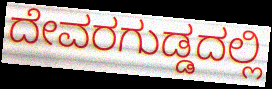
ದೇವರಗುಡ್ಡದಲ್ಲಿ